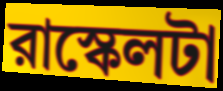
রাস্কেলটা